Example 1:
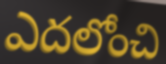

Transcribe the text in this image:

ఎదలోంచి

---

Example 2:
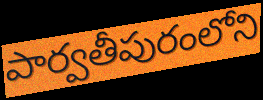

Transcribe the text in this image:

పార్వతీపురంలోని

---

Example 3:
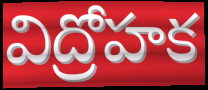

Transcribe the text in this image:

విద్రోహక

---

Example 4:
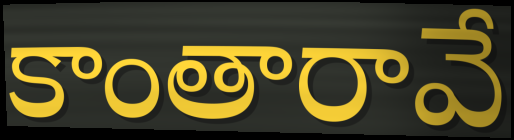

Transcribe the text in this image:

కాంతారావే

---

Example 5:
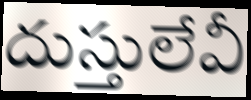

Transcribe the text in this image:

దుస్తులేవీ